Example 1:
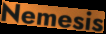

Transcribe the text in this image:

Nemesis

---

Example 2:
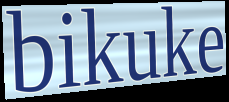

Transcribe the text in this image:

bikuke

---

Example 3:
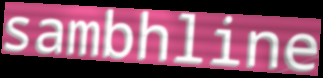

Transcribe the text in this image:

sambhline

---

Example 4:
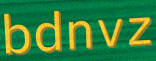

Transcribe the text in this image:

bdnvz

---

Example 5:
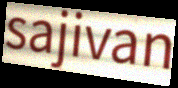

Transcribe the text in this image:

sajivan